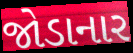
જોડાનાર